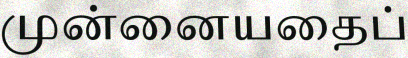
முன்னையதைப்